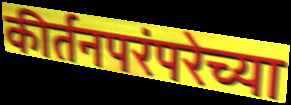
कीर्तनपरंपरेच्या